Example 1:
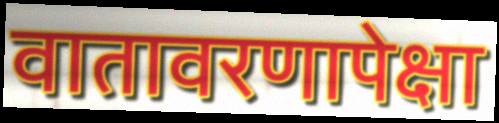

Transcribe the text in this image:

वातावरणापेक्षा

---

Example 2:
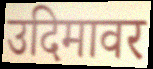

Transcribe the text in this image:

उदिमावर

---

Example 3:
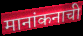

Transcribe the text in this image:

मानांकनाची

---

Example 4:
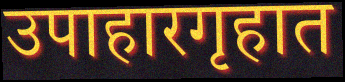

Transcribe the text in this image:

उपाहारगृहात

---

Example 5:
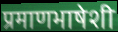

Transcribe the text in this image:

प्रमाणभाषेशी